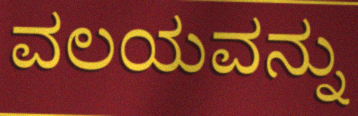
ವಲಯವನ್ನು